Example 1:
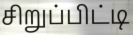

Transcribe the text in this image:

சிறுப்பிட்டி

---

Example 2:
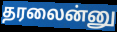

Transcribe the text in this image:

தரலைன்னு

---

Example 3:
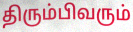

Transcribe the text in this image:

திரும்பிவரும்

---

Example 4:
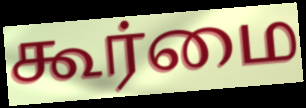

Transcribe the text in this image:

கூர்மை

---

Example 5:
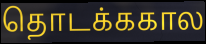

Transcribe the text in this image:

தொடக்ககால